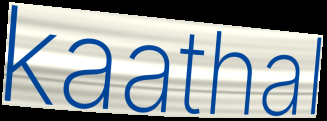
kaathal